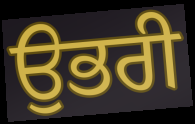
ਉਭਰੀ